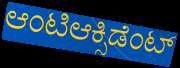
ಆಂಟಿಆಕ್ಸಿಡೆಂಟ್